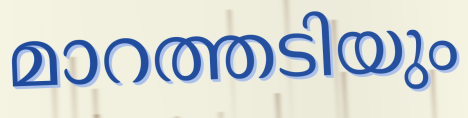
മാറത്തടിയും